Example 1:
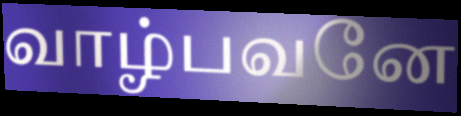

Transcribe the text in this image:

வாழ்பவனே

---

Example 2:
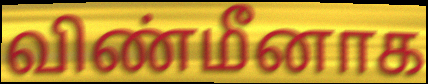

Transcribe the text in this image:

விண்மீனாக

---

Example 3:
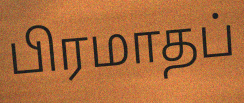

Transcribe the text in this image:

பிரமாதப்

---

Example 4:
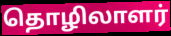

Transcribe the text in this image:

தொழிலாளர்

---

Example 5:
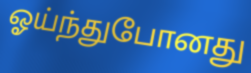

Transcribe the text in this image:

ஓய்ந்துபோனது